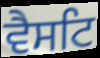
ਵੈਸਟਿ